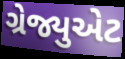
ગ્રેજ્યુએટ